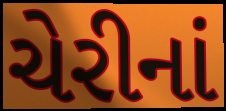
ચેરીનાં